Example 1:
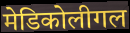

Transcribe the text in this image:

मेडिकोलीगल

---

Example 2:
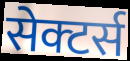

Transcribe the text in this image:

सेक्‍टर्स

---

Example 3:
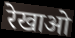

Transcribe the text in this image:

रेखाओ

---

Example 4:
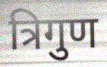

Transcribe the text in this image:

त्रिगुण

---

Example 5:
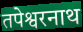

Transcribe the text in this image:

तपेश्वरनाथ